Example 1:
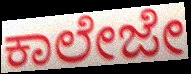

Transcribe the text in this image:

ಕಾಲೇಜೇ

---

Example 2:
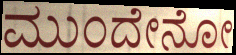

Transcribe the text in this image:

ಮುಂದೇನೋ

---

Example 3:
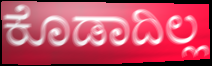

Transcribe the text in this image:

ಕೊಡಾದಿಲ್ಲ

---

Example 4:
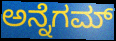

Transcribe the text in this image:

ಅನ್ನೆಗಮ್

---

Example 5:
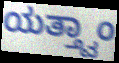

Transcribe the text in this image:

ಯತ್ತ್ವಾಂ